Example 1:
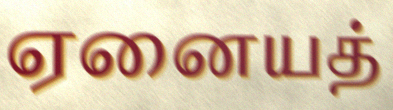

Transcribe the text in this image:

ஏனையத்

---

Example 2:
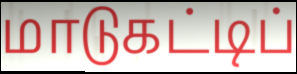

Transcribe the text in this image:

மாடுகட்டிப்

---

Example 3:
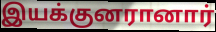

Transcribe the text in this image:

இயக்குனரானார்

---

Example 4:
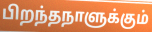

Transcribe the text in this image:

பிறந்தநாளுக்கும்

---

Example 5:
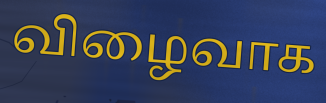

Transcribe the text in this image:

விழைவாக